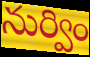
నుర్విం